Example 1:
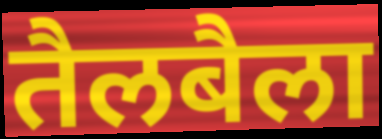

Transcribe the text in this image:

तैलबैला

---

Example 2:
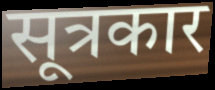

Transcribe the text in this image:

सूत्रकार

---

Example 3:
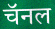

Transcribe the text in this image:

चॅनल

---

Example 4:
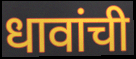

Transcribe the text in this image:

धावांची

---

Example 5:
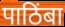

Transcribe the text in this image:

पाठिंबा